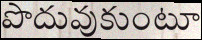
పొదువుకుంటూ